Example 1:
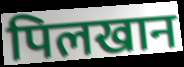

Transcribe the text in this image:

पिलखान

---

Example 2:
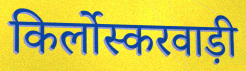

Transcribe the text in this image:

किर्लोस्करवाड़ी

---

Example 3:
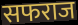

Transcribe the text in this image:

सफराज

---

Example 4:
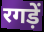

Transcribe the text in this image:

रगड़ें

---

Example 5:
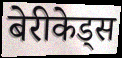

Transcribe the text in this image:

बेरीकेड्स